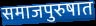
समाजपुरुषात